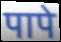
पापे